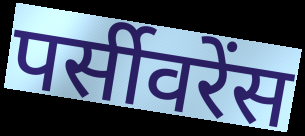
पर्सीवरेंस